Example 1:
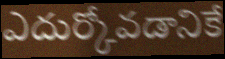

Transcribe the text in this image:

ఎదుర్కోవడానికే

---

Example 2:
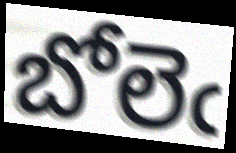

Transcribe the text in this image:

బోలెఁ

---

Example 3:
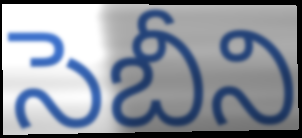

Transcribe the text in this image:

సెబీని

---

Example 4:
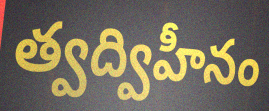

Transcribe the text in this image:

త్వద్విహీనం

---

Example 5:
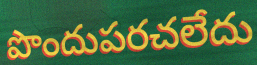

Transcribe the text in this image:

పొందుపరచలేదు